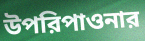
উপরিপাওনার